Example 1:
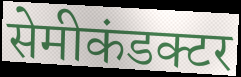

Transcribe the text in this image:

सेमीकंडक्टर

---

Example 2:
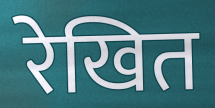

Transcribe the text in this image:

रेखित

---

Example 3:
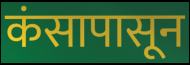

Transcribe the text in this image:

कंसापासून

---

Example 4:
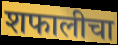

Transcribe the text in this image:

शफालीचा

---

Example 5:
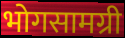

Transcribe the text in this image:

भोगसामग्री